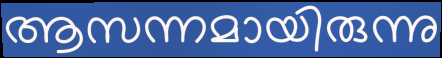
ആസന്നമായിരുന്നു